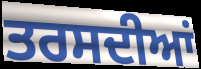
ਤਰਸਦੀਆਂ